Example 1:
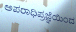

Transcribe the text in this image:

ಅಪರಾಧಿಪ್ರಜ್ಞೆಯಿಂದ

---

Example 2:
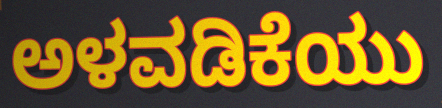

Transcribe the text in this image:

ಅಳವಡಿಕೆಯು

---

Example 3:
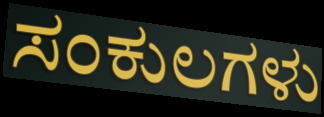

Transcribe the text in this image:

ಸಂಕುಲಗಳು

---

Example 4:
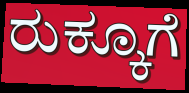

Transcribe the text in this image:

ರುಕ್ಕೂಗೆ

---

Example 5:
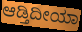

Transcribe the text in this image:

ಆಡ್ತಿದೀಯಾ